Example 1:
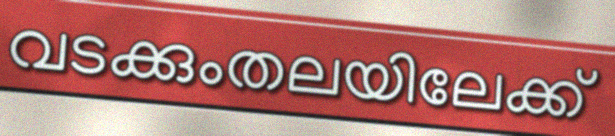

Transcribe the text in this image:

വടക്കുംതലയിലേക്ക്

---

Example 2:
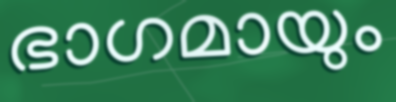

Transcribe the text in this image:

ഭാഗമായും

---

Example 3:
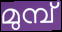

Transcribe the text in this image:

മുമ്പ്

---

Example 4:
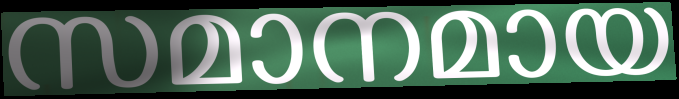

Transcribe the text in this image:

സമാനമായ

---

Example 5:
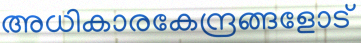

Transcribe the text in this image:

അധികാരകേന്ദ്രങ്ങളോട്